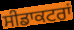
ਸੀਡਾਕਟਰਾਂ